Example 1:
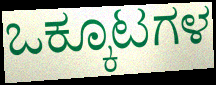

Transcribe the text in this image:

ಒಕ್ಕೂಟಗಳ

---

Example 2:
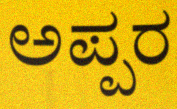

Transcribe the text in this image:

ಅಪ್ಪರ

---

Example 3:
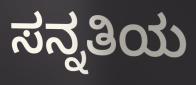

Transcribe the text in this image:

ಸನ್ನತಿಯ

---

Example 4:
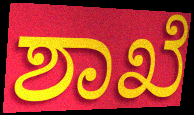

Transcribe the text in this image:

ಶಾಖೆ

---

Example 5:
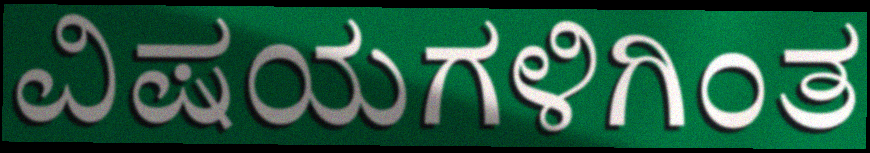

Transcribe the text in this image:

ವಿಷಯಗಳಿಗಿಂತ